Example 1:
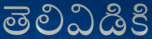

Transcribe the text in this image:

తెలివిడికి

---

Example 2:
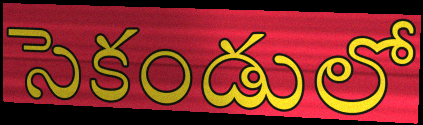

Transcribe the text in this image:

సెకండులో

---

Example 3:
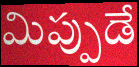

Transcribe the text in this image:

మిప్పుడే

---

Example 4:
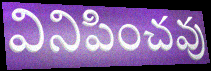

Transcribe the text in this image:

వినిపించవు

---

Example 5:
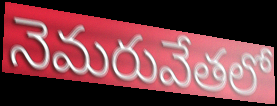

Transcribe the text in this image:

నెమరువేతలో